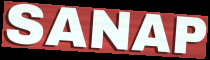
SANAP